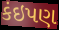
કંઇપણ